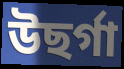
উছৰ্গা